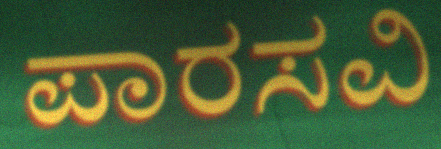
ಪಾರಸವಿ